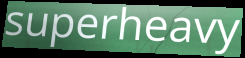
superheavy